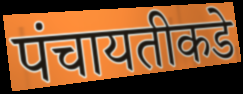
पंचायतीकडे